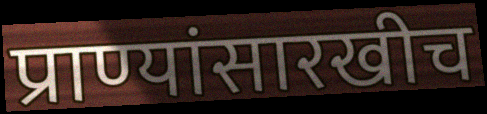
प्राण्यांसारखीच